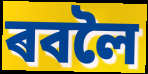
ৰবলৈ